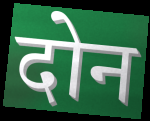
दोन